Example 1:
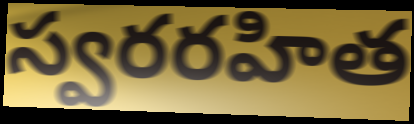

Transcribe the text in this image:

స్వరరహిత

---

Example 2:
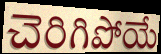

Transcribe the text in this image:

చెరిగిపోయే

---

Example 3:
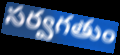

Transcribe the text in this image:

సర్వగతుం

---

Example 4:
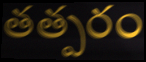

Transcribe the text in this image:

తత్పరం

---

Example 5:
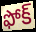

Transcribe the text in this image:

ఫోక్